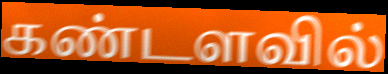
கண்டளவில்